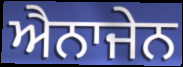
ਐਨਾਜੇਨ